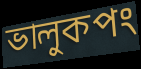
ভালুকপং